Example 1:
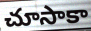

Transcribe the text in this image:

చూసాకా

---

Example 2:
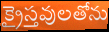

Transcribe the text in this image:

క్రైస్తవులతోను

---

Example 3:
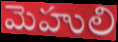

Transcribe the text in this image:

మెహులి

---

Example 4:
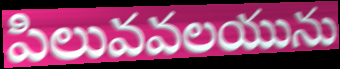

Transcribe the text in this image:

పిలువవలయును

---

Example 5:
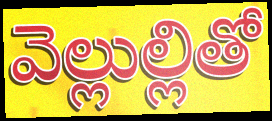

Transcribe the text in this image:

వెల్లుల్లితో